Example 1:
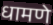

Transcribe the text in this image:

धामणे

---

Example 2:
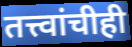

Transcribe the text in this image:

तत्त्वांचीही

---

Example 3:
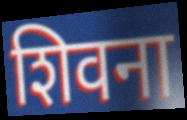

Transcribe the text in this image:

शिवना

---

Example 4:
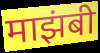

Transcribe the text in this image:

माझंबी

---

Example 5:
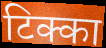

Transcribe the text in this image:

टिक्का